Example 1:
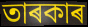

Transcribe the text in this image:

তাৰকাৰ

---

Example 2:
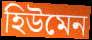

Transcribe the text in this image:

হিউমেন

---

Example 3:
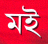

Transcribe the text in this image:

মই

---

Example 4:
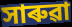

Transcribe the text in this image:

সাৰুৱা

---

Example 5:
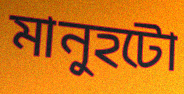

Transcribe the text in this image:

মানুহটো